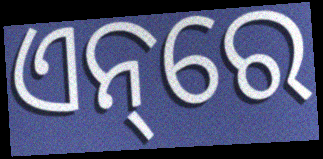
ଏନ୍‌ରେ